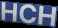
HCH